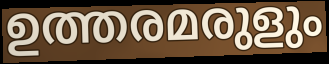
ഉത്തരമരുളും